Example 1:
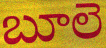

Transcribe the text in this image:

బూలె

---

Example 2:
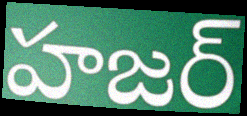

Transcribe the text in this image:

హజర్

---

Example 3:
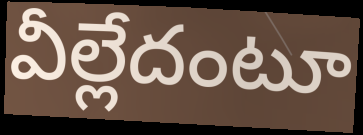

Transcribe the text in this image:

వీల్లేదంటూ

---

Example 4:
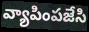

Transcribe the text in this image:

వ్యాపింపజేసి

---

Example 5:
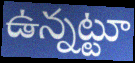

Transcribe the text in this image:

ఉన్నట్టూ